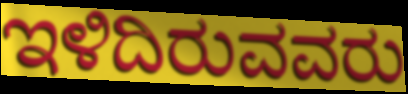
ಇಳಿದಿರುವವರು